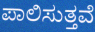
ಪಾಲಿಸುತ್ತವೆ